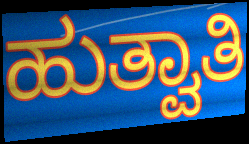
ಹುತ್ವಾತಿ